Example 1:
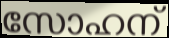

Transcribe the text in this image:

സോഹന്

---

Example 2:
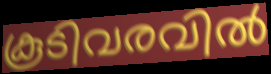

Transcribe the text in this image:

കൂടിവരവിൽ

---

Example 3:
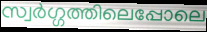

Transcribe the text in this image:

സ്വർഗ്ഗത്തിലെപ്പോലെ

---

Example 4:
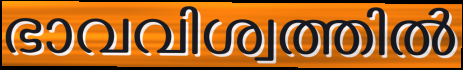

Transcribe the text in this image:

ഭാവവിശ്വത്തിൽ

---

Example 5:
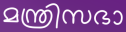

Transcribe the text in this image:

മന്ത്രിസഭാ